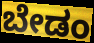
ಬೇಡಂ